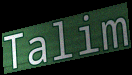
Talim